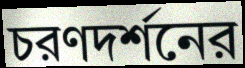
চরণদর্শনের